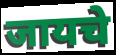
जायचे